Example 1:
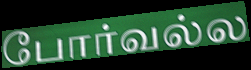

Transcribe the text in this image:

போர்வல்ல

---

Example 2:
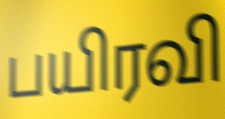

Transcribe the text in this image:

பயிரவி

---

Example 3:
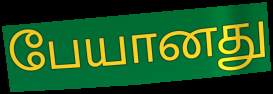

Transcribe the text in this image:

பேயானது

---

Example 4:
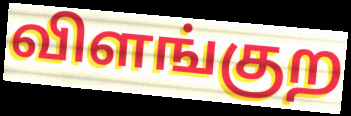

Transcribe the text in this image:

விளங்குற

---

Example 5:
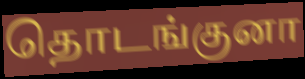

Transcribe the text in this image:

தொடங்குனா